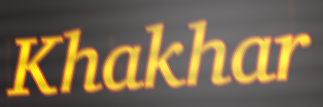
Khakhar